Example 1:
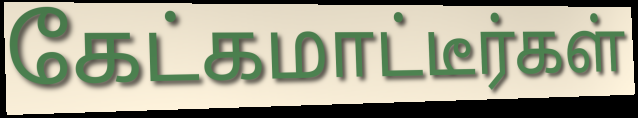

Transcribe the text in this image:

கேட்கமாட்டீர்கள்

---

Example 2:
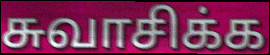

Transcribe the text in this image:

சுவாசிக்க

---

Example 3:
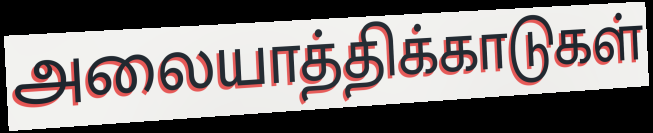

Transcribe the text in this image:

அலையாத்திக்காடுகள்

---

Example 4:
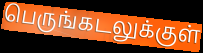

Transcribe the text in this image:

பெருங்கடலுக்குள்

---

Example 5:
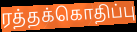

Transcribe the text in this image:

ரத்தக்கொதிப்பு